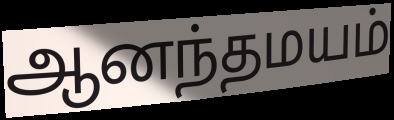
ஆனந்தமயம்